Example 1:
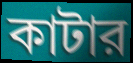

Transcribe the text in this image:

কাটার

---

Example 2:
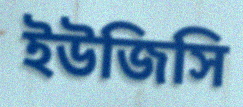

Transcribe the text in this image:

ইউজিসি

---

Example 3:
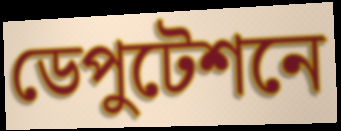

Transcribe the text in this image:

ডেপুটেশনে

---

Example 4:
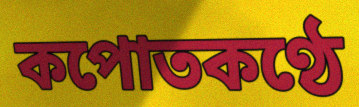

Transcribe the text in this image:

কপোতকণ্ঠে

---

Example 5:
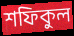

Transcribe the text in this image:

শফিকুল